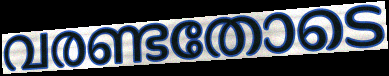
വരണ്ടതോടെ